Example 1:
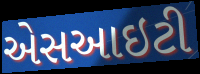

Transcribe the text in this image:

એસઆઇટી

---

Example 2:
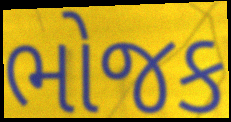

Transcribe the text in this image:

ભોજક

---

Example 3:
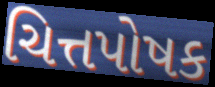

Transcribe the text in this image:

ચિત્તપોષક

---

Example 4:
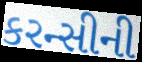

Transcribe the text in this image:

કરન્સીની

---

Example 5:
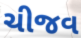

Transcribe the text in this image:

ચીજવ